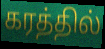
கரத்தில்